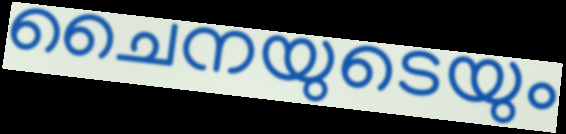
ചൈനയുടെയും